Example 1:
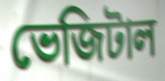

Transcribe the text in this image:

ভেজিটাল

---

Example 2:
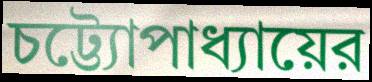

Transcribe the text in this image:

চট্ট্যোপাধ্যায়ের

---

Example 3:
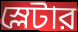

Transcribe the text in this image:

স্লেটার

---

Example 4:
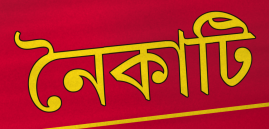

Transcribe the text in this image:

নৈকাটি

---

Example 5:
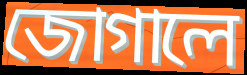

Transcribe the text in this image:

জোগালে